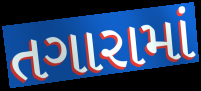
તગારામાં